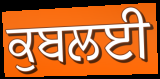
ਕੁਬਲਈ